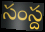
సంస్ద